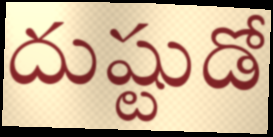
దుష్టుడో